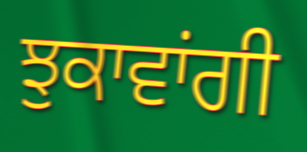
ਝੁਕਾਵਾਂਗੀ